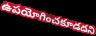
ఉపయోగించకూడదని